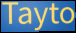
Tayto